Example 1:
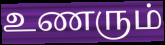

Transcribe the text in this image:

உணரும்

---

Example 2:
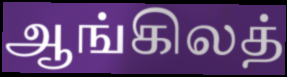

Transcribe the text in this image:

ஆங்கிலத்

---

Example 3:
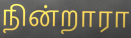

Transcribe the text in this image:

நின்றாரா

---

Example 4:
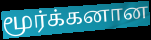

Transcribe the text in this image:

மூர்க்கனான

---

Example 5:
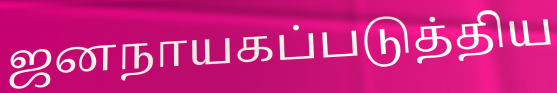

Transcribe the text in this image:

ஜனநாயகப்படுத்திய